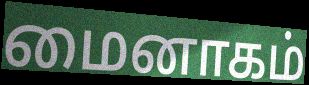
மைனாகம்